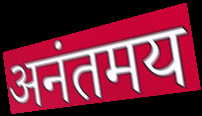
अनंतमय